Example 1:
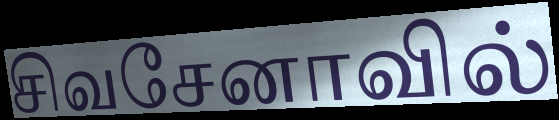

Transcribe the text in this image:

சிவசேனாவில்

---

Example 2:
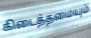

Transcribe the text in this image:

கிடைத்தமையும்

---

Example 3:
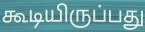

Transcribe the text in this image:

கூடியிருப்பது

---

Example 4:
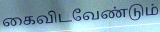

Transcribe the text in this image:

கைவிடவேண்டும்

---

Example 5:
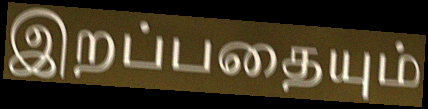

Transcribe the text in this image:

இறப்பதையும்